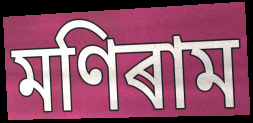
মণিৰাম